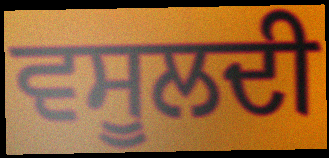
ਵਸੂਲਦੀ